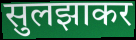
सुलझाकर